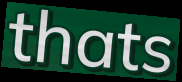
thats